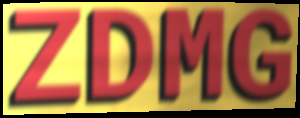
ZDMG